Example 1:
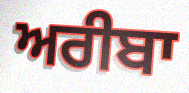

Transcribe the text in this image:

ਅਰੀਬਾ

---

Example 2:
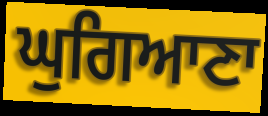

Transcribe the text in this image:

ਘੁਗਿਆਣਾ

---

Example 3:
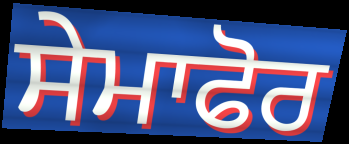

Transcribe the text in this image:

ਸੇਮਾਫੋਰ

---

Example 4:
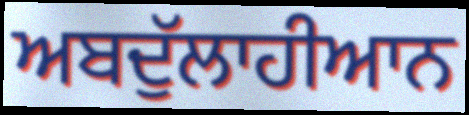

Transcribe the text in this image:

ਅਬਦੁੱਲਾਹੀਆਨ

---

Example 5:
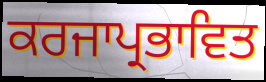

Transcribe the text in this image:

ਕਰਜਾਪ੍ਰਭਾਵਿਤ